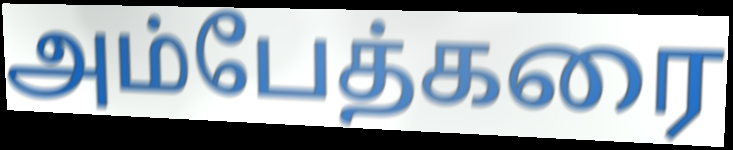
அம்பேத்கரை